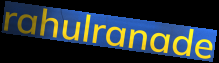
rahulranade